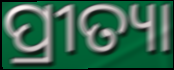
ପ୍ରୀତ୍ୟା